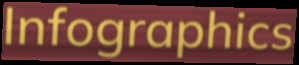
Infographics